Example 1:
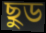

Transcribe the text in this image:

ছুড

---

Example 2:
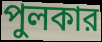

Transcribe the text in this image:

পুলকার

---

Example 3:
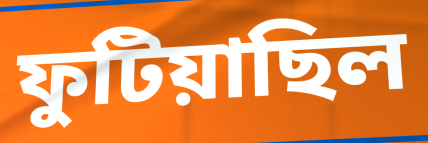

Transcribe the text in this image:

ফুটিয়াছিল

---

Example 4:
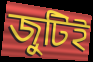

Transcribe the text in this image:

জুটিই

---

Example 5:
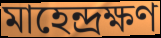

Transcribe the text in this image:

মাহেন্দ্রক্ষণ